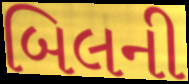
બિલની